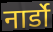
नार्डो